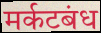
मर्कटबंध